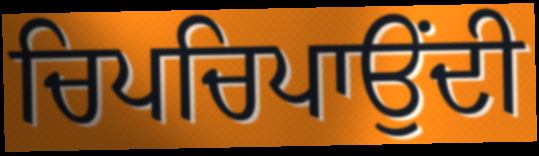
ਚਿਪਚਿਪਾਉਂਦੀ